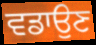
ਵਡਾਉਣ